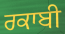
ਰਕਾਬੀ